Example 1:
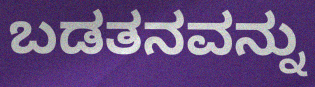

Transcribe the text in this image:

ಬಡತನವನ್ನು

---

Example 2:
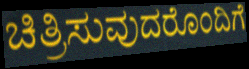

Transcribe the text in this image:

ಚಿತ್ರಿಸುವುದರೊಂದಿಗೆ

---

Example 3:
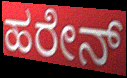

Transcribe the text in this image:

ಹರೇನ್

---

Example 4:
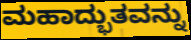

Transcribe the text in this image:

ಮಹಾದ್ಭುತವನ್ನು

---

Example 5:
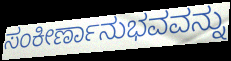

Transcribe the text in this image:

ಸಂಕೀರ್ಣಾನುಭವವನ್ನು